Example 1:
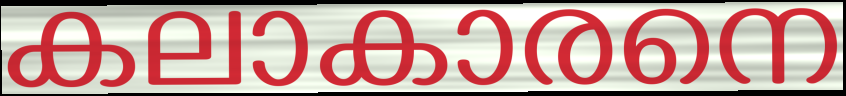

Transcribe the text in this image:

കലാകാരനെ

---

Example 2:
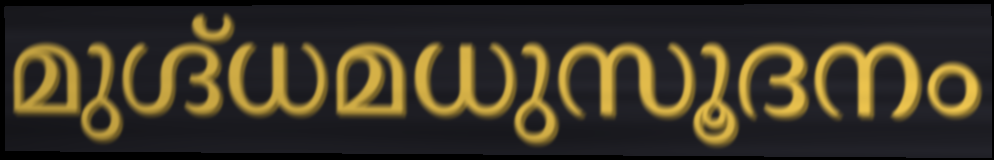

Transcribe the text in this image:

മുഗ്ദ്ധമധുസൂദനം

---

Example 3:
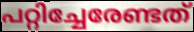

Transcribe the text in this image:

പറ്റിച്ചേരേണ്ടത്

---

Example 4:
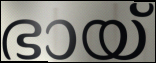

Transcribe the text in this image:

ഭായ്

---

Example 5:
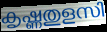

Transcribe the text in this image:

കൃഷ്ണതുളസി